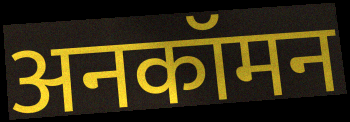
अनकॉमन